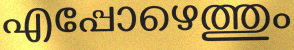
എപ്പോഴെത്തും